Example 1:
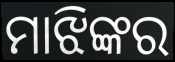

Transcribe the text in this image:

ମାଝିଙ୍କର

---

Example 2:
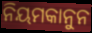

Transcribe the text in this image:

ନିୟମକାନୁନ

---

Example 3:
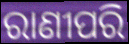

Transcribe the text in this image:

ରାଣୀପରି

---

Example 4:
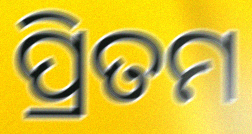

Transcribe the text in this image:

ପ୍ରିତମ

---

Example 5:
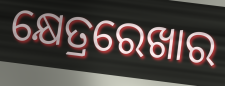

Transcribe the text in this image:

କ୍ଷେତ୍ରରେଖାର